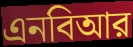
এনবিআর